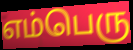
எம்பெரு